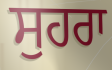
ਸੁਹਰਾ